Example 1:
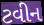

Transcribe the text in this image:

ટવીન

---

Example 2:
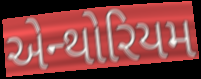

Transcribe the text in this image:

એન્થોરિયમ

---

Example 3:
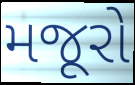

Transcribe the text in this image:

મજૂરો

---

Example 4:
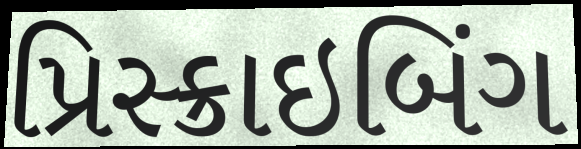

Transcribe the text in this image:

પ્રિસ્ક્રાઇબિંગ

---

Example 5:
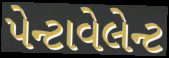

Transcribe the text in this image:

પેન્ટાવેલેન્ટ